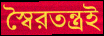
স্বৈরতন্ত্রই